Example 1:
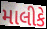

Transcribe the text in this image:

માલીકે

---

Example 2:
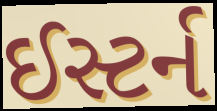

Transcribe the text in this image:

ઈસ્ટર્ન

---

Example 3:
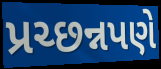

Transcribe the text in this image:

પ્રચ્છન્નપણે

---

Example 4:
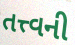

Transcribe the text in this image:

તત્ત્વની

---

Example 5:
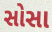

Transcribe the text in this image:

સોસા